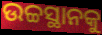
ଉଚ୍ଚସ୍ଥାନକୁ